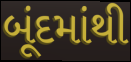
બૂંદમાંથી